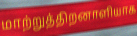
மாற்றுத்திறனாளியாக